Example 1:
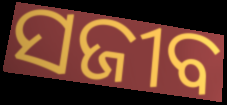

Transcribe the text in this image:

ସଜୀବ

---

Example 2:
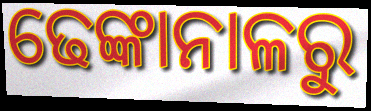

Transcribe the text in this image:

ଢେଙ୍କାନାଳରୁ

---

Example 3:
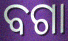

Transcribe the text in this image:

ବଗା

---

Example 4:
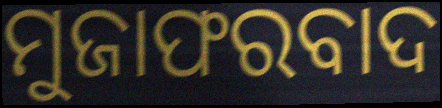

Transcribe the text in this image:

ମୁଜାଫରବାଦ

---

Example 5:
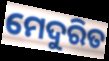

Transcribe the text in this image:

ମେଦୁରିତ